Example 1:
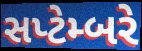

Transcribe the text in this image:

સપ્ટેમ્બરે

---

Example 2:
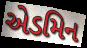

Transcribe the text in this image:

એડમિન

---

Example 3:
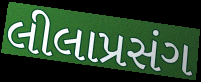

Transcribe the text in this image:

લીલાપ્રસંગ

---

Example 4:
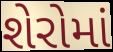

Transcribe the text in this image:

શેરોમાં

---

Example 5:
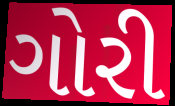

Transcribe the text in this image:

ગોરી